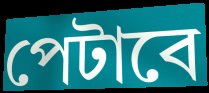
পেটাবে